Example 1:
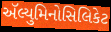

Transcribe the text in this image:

ઍલ્યુમિનોસિલિકેટ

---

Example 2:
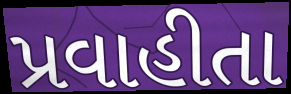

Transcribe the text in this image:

પ્રવાહીતા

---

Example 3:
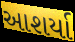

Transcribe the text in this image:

આશર્યા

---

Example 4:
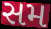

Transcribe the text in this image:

સમ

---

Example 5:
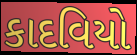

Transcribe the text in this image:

કાદવિયો